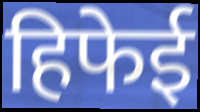
हिफेई